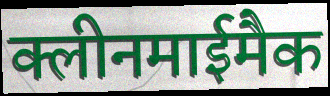
क्लीनमाईमैक